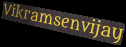
Vikramsenvijay